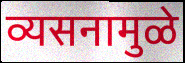
व्यसनामुळे